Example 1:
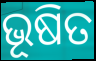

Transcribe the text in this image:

ଭୂଷିତ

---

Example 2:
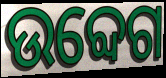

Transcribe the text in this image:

ଉବ୍ଦେଗ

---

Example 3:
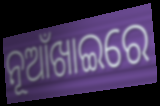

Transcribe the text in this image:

ନୂଆଁଖାଇରେ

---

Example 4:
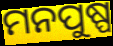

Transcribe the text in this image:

ମନପୁଷ୍ପ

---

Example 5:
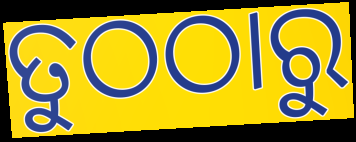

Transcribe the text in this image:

ତୁଠଠାରୁ